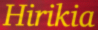
Hirikia